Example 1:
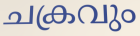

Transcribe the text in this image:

ചക്രവും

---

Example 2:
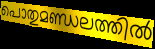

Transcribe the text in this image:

പൊതുമണ്ഡലത്തിൽ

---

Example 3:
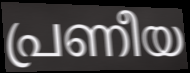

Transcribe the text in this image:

പ്രണീയ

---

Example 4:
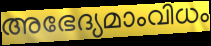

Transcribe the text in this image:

അഭേദ്യമാംവിധം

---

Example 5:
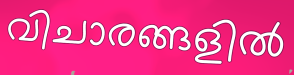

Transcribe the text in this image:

വിചാരങ്ങളിൽ